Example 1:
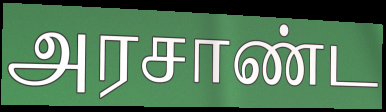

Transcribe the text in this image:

அரசாண்ட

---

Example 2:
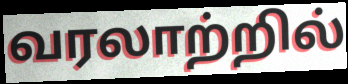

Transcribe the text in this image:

வரலாற்றில்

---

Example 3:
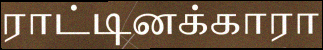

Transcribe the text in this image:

ராட்டினக்காரா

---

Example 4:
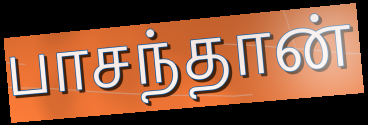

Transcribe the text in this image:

பாசந்தான்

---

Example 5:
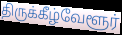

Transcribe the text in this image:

திருக்கீழ்வேளூர்